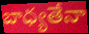
బాధ్యతేనా